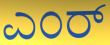
ಎಂರ್